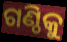
ଗଣ୍ଠିକୁ